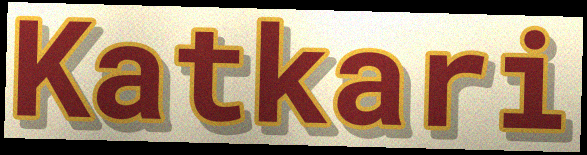
Katkari